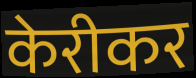
केरीकर